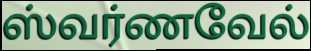
ஸ்வர்ணவேல்